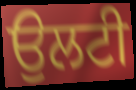
ਉਲਟੀ